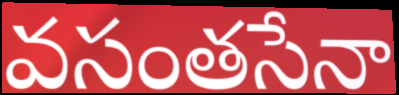
వసంతసేనా